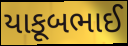
યાકૂબભાઈ